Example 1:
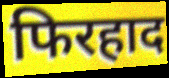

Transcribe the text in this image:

फिरहाद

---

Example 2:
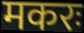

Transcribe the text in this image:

मकरः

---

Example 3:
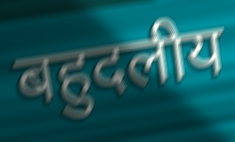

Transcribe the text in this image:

बहुदलीय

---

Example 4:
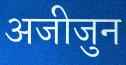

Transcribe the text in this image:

अजीजुन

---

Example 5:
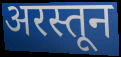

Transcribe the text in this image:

अरस्तून